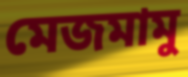
মেজমামু